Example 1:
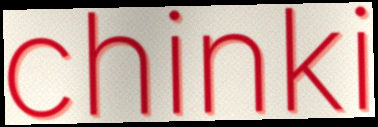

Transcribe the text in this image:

chinki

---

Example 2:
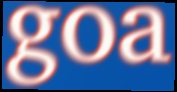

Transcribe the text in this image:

goa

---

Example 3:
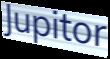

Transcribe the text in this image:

Jupitor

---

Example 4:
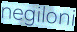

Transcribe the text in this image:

negiloni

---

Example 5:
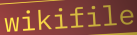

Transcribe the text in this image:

wikifile